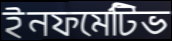
ইনফর্মেটিভ